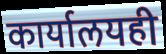
कार्यालयही